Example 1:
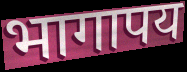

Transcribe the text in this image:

भागापय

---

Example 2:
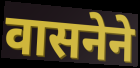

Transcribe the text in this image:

वासनेने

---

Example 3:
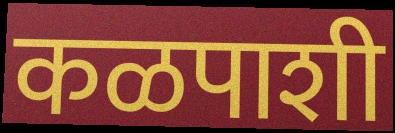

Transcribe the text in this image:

कळपाशी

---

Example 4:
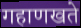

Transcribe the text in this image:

गहाणखते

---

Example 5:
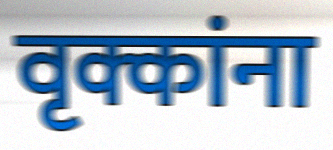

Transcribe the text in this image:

वृक्कांना